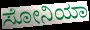
ಸೋನಿಯಾ